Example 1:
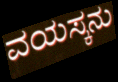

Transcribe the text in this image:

ವಯಸ್ಕನು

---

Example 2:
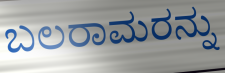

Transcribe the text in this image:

ಬಲರಾಮರನ್ನು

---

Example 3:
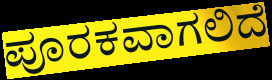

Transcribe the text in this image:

ಪೂರಕವಾಗಲಿದೆ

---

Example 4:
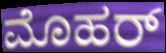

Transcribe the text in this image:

ಮೊಹರ್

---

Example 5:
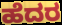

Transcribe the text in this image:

ಹೆದರ